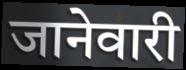
जानेवारी